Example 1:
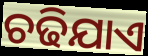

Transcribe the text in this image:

ଚଢିଯାଏ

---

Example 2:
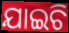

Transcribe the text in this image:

ଯାଇଚି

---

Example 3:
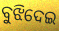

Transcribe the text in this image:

ବୁଝିଦେଇ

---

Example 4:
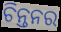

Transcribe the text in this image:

ଚିନ୍ତନର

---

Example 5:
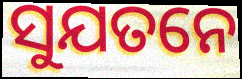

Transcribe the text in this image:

ସୁଯତନେ